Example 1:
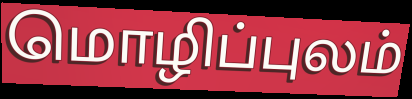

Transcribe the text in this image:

மொழிப்புலம்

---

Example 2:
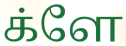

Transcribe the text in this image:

க்ளே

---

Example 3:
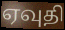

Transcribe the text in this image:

ஏவுதி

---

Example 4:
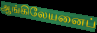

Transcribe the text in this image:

ஆங்கிலேயனைப்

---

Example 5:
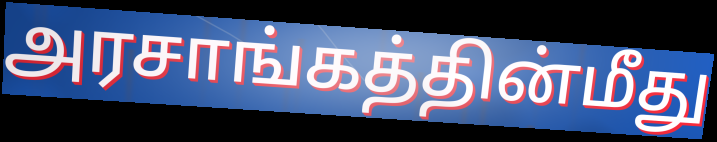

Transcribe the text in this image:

அரசாங்கத்தின்மீது